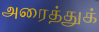
அரைத்துக்